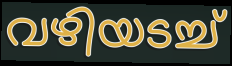
വഴിയടച്ച്